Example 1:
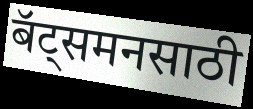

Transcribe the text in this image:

बॅट्समनसाठी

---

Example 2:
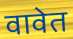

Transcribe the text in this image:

वावेत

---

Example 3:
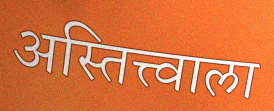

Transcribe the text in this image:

अस्तित्त्वाला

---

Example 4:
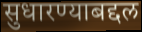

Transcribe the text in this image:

सुधारण्याबद्दल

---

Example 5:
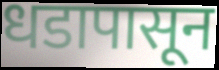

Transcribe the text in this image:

धडापासून